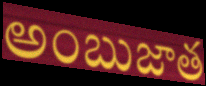
అంబుజాత